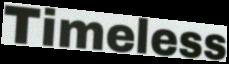
Timeless